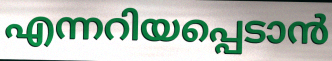
എന്നറിയപ്പെടാൻ